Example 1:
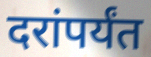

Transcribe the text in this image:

दरांपर्यंत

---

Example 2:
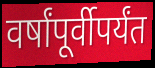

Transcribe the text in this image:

वर्षांपूर्वीपर्यंत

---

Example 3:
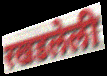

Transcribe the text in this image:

रखडलेली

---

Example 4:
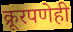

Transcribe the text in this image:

क्रूरपणेही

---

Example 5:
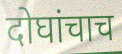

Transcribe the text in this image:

दोघांचाच